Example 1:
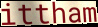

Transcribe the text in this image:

ittham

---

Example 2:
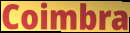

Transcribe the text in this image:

Coimbra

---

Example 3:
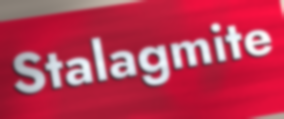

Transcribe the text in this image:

Stalagmite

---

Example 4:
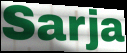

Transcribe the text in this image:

Sarja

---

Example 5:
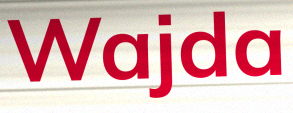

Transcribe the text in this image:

Wajda